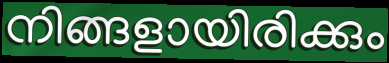
നിങ്ങളായിരിക്കും